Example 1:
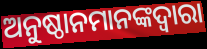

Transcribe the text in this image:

ଅନୁଷ୍ଠାନମାନଙ୍କଦ୍ଵାରା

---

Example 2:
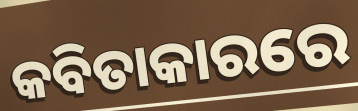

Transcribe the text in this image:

କବିତାକାରରେ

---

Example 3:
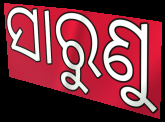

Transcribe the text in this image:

ସାରୁଣୁ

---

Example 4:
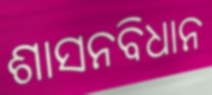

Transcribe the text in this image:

ଶାସନବିଧାନ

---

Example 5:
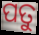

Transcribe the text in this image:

ପତୁ